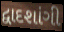
દ્વાદશાંગી